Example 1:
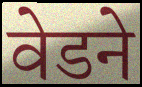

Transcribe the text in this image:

वेडने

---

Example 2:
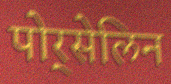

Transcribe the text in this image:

पोर्सेलिन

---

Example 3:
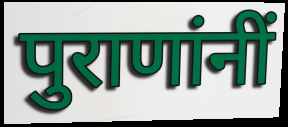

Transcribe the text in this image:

पुराणांनीं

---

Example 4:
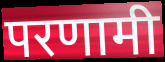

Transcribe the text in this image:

परणामी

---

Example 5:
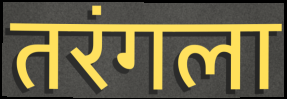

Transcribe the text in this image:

तरंगला